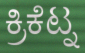
ಕ್ರಿಕೆಟ್ನ